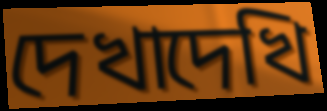
দেখাদেখি